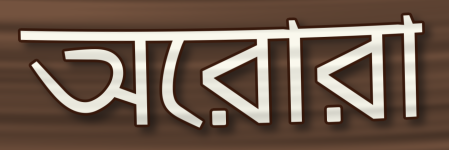
অরোরা